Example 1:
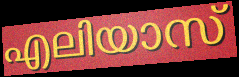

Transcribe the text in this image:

എലിയാസ്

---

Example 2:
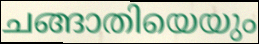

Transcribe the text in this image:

ചങ്ങാതിയെയും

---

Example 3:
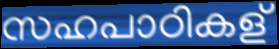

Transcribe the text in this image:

സഹപാഠികള്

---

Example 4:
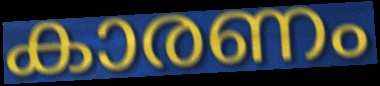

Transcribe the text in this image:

കാരണം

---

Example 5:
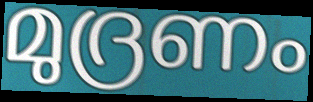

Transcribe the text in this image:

മുദ്രണം